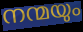
നന്മയും